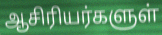
ஆசிரியர்களுள்